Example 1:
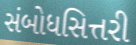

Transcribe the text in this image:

સંબોધસિત્તરી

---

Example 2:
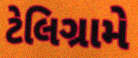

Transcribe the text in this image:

ટેલિગ્રામે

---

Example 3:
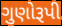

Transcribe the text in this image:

ગુણોરૂપી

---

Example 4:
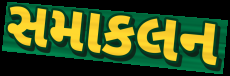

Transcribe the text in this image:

સમાકલન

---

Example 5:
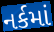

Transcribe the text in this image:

નર્કમાં